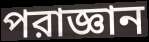
পরাজ্ঞান